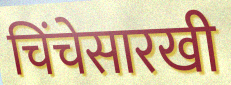
चिंचेसारखी